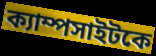
ক্যাম্পসাইটকে